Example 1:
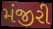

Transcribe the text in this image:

મંજીરી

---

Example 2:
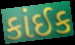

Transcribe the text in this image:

કાંઈક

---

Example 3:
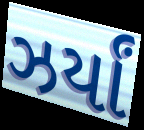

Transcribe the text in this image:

ઝર્યાં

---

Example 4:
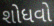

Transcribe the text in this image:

શોધવો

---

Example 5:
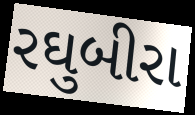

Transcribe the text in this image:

રઘુબીરા